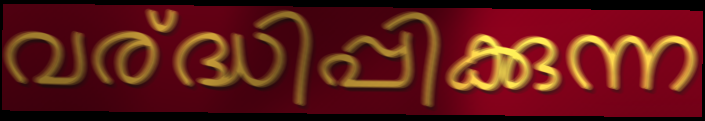
വര്ദ്ധിപ്പിക്കുന്ന